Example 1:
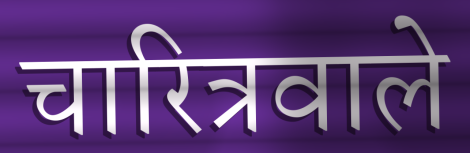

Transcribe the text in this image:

चारित्रवाले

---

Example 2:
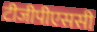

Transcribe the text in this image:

टीजीपीएससी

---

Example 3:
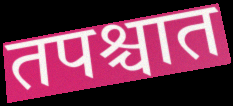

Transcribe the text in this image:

तपश्चात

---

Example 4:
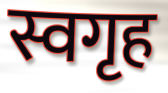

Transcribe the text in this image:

स्वगृह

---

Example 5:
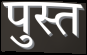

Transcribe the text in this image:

पुस्त